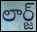
లార్జ్